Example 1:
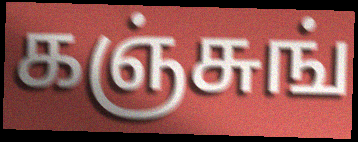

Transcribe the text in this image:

கஞ்சுங்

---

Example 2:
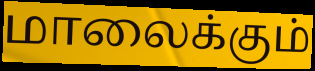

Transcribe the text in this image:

மாலைக்கும்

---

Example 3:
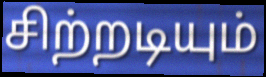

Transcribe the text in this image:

சிற்றடியும்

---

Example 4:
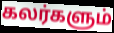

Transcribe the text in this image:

கலர்களும்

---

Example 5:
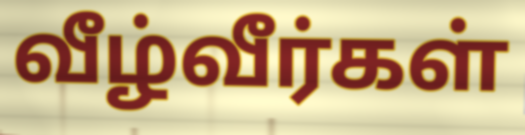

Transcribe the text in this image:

வீழ்வீர்கள்